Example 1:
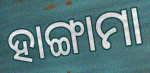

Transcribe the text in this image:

ହାଙ୍ଗାମା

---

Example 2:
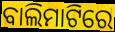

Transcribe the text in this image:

ବାଲିମାଟିରେ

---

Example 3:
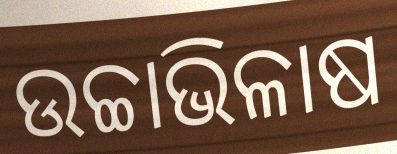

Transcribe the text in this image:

ଉଚ୍ଚାଭିଳାଷ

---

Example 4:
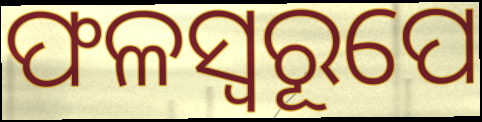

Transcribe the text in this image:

ଫଳସ୍ୱରୂପେ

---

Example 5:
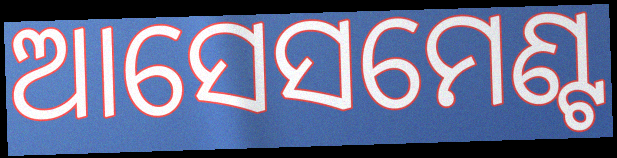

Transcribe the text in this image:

ଆସେସମେଣ୍ଟ